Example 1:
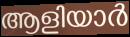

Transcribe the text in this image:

ആളിയാർ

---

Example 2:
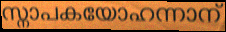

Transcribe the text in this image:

സ്നാപകയോഹന്നാന്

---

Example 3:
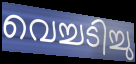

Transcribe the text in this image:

വെച്ചടിച്ചു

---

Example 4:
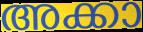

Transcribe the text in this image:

അക്കാ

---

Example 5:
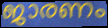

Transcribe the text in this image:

ജാരണം